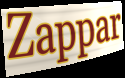
Zappar